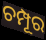
ଚମ୍ପୂର